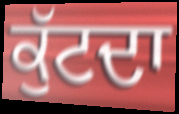
ਕੁੱਟਦਾ